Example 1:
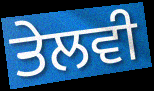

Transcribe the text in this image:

ਤੇਲਵੀ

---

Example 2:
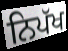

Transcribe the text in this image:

ਨਿਪੱਖ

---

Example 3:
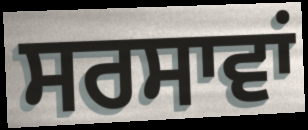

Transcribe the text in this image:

ਸਰਸਾਵਾਂ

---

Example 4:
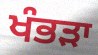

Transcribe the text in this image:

ਖੰਭੜਾ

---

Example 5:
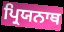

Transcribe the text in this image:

ਪ੍ਰਿਯਨਾਥ